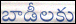
బాడీలకు